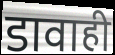
डावाही